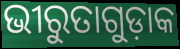
ଭୀରୁତାଗୁଡ଼ାକ